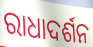
ରାଧାଦର୍ଶନ